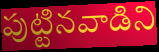
పుట్టినవాడిని